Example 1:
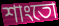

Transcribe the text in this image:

শাংতো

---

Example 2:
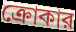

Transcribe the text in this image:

ক্রোকার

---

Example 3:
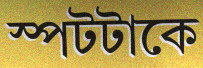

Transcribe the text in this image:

স্পটটাকে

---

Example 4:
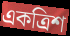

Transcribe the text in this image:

একত্রিশ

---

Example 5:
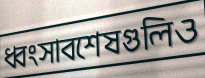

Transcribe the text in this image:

ধ্বংসাবশেষগুলিও